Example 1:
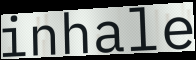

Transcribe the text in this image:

inhale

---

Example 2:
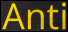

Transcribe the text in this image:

Anti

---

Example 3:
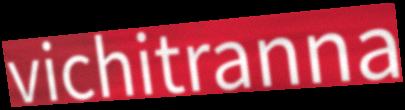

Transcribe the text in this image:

vichitranna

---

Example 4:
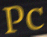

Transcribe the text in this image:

Pc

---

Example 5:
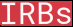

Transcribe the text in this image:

IRBs